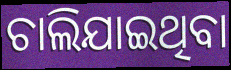
ଚାଲିଯାଇଥିବା